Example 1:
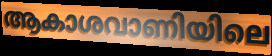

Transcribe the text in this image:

ആകാശവാണിയിലെ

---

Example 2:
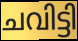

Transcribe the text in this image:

ചവിട്ടി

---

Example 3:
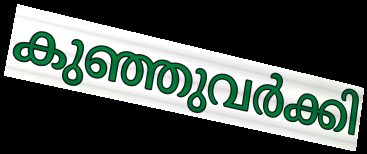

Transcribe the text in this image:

കുഞ്ഞുവർക്കി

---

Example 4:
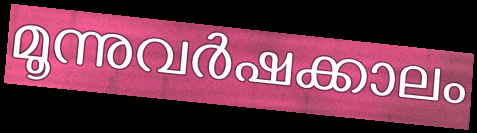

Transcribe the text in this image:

മൂന്നുവർഷക്കാലം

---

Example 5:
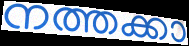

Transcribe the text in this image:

നത്തക്കാ